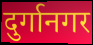
दुर्गानगर